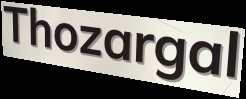
Thozargal